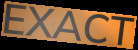
EXACT